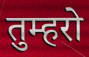
तुम्हरो